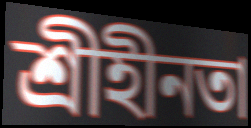
শ্রীহীনতা